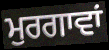
ਮੁਰਗਾਵਾਂ